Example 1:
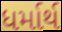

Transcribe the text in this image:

ધર્માર્થ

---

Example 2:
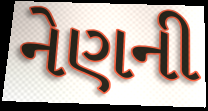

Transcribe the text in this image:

નેણની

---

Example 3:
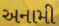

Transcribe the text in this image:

અનામી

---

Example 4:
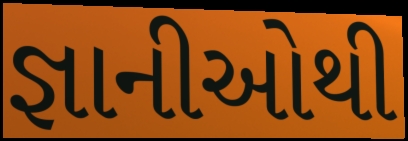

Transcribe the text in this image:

જ્ઞાનીઓથી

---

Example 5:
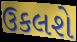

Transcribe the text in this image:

ઉકલશે